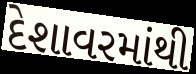
દેશાવરમાંથી